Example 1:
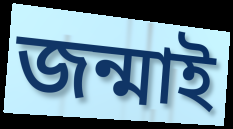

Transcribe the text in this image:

জন্মাই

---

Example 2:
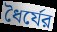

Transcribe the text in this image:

ধৈর্যের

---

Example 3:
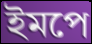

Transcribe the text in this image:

ইমপে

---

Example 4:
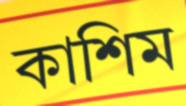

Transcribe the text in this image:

কাশিম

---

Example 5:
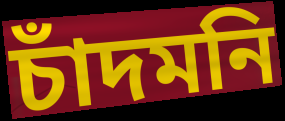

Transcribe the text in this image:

চাঁদমনি